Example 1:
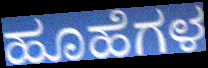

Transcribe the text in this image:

ಹೂಹೆಗಳ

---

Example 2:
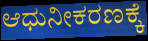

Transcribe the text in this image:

ಆಧುನೀಕರಣಕ್ಕೆ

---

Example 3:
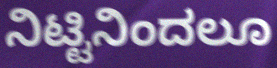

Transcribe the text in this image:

ನಿಟ್ಟಿನಿಂದಲೂ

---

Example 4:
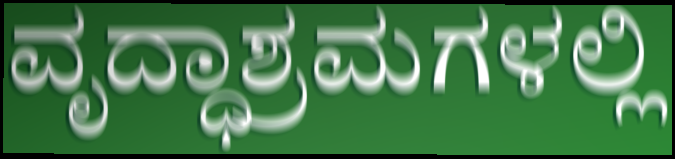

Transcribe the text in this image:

ವೃದ್ಧಾಶ್ರಮಗಳಲ್ಲಿ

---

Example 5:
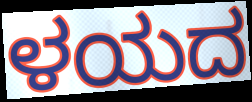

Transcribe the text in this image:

ಳಯದ